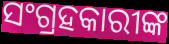
ସଂଗ୍ରହକାରୀଙ୍କ